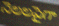
నెలలపైగా